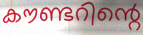
കൗണ്ടറിന്റെ